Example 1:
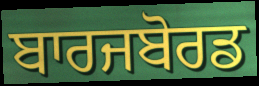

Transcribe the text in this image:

ਬਾਰਜਬੋਰਡ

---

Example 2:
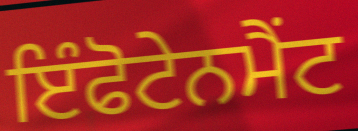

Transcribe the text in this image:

ਇੰਫੋਟੇਨਮੈਂਟ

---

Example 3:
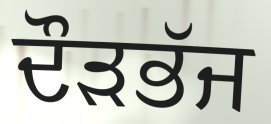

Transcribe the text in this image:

ਦੌੜਭੱਜ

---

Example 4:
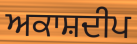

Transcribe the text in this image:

ਅਕਾਸ਼ਦੀਪ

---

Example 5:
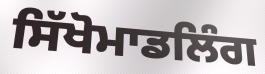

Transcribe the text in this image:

ਸਿੱਖੋਮਾਡਲਿੰਗ